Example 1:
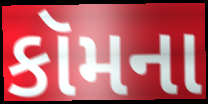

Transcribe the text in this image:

કૉમના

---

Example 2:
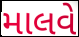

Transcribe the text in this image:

માલવે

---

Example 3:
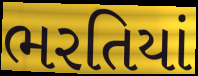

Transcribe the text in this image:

ભરતિયાં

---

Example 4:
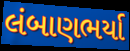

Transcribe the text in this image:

લંબાણભર્યા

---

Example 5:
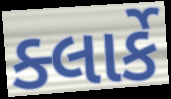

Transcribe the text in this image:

ક્લાર્કે